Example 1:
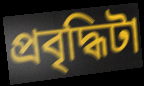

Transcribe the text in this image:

প্রবৃদ্ধিটা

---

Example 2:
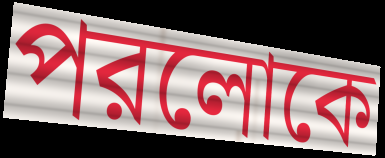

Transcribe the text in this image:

পরলোকে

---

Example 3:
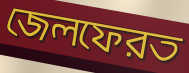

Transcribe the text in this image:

জেলফেরত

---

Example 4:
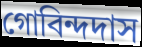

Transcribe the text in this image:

গোবিন্দদাস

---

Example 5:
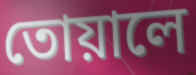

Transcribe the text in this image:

তোয়ালে